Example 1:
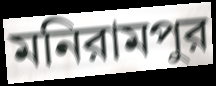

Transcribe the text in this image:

মনিরামপুর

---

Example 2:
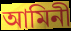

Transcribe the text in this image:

আমিনী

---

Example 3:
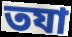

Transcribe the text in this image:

তযা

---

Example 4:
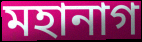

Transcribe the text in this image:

মহানাগ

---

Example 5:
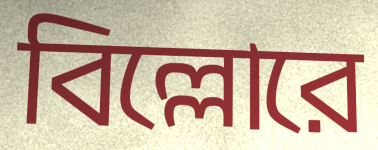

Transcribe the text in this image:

বিল্লোরে